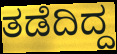
ತಡೆದಿದ್ದ